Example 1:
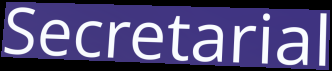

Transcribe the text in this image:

Secretarial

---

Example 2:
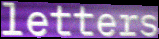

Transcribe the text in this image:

letters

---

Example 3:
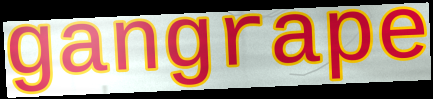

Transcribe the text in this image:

gangrape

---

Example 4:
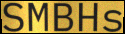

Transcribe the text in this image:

SMBHs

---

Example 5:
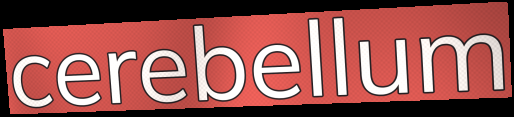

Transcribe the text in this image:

cerebellum